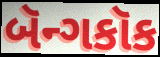
બૅન્ગકૉક